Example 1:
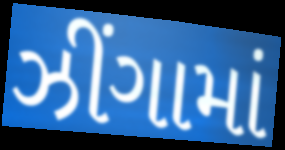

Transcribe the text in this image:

ઝીંગામાં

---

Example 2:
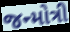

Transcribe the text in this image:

જન્મોત્રી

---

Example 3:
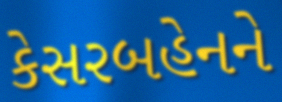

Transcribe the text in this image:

કેસરબહેનને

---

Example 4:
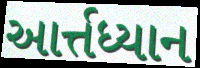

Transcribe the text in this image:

આર્ત્તધ્યાન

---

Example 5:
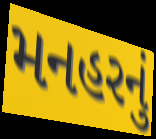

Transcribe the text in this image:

મનહરનું